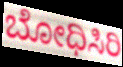
ಬೋಧಿಸಿರಿ